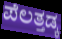
ಪೆಲತ್ತಡ್ಕ